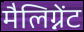
मैलिग्नेंट